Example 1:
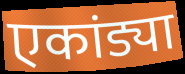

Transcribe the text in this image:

एकांड्या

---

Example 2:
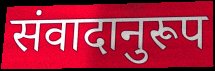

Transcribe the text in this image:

संवादानुरूप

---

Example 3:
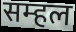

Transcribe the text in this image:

सम्हल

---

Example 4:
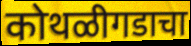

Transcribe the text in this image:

कोथळीगडाचा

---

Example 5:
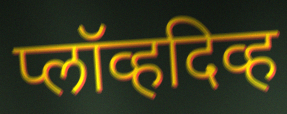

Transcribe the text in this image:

प्लॉव्हदिव्ह